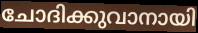
ചോദിക്കുവാനായി